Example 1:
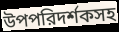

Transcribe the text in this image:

উপপরিদর্শকসহ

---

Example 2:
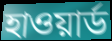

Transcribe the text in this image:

হাওয়ার্ড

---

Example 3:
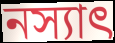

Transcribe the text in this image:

নস্যাৎ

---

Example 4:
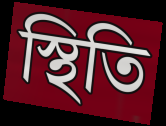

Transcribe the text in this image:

স্থিতি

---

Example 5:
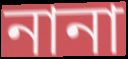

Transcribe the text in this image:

নানা